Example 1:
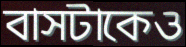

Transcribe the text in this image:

বাসটাকেও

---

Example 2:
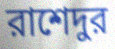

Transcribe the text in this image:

রাশেদুর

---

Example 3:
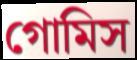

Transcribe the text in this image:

গোমিস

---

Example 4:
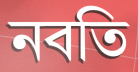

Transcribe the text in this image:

নবতি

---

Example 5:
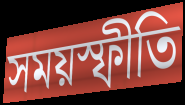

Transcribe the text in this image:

সময়স্ফীতি